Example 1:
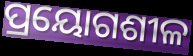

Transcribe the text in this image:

ପ୍ରୟୋଗଶୀଳ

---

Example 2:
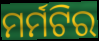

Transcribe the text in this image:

ମର୍ମଟିର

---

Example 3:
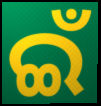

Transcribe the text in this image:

ଇଁ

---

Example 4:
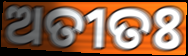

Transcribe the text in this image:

ଅତୀତଃ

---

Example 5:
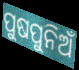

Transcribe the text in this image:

ପୁଷପୁନିଅଁ